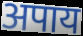
अपाय